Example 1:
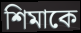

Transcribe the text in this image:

শিমাকে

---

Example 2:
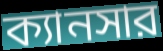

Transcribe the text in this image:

ক্যানসার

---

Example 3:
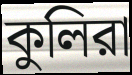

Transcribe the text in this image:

কুলিরা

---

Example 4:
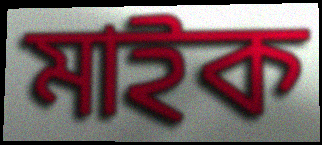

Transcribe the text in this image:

মাইক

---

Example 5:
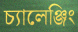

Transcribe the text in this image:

চ্যালেঞ্জিং